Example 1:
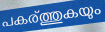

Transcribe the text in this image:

പകര്ത്തുകയും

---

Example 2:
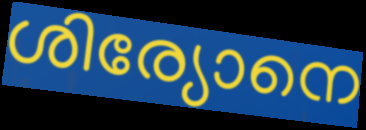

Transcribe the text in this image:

ശിര്യോനെ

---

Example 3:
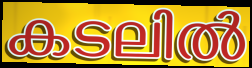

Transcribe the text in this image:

കടലിൽ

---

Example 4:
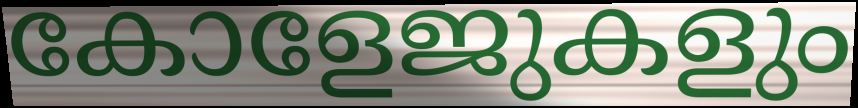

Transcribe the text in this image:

കോളേജുകളും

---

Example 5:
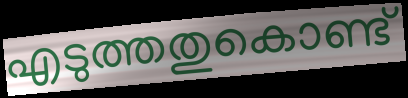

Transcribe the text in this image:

എടുത്തതുകൊണ്ട്